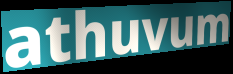
athuvum